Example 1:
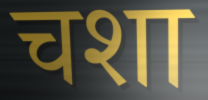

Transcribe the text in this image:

चशा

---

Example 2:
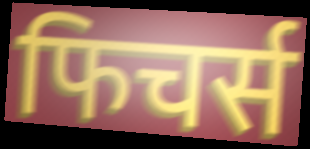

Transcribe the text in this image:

फिचर्स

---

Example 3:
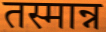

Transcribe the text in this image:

तस्मान्न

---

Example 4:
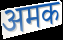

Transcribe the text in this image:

अमक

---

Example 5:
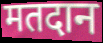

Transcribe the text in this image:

मतदान